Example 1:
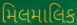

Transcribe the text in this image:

મિલમાલિક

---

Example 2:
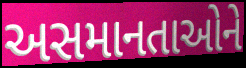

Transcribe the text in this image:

અસમાનતાઓને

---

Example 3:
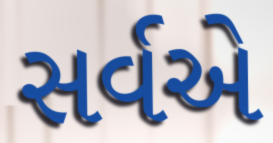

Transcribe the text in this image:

સર્વએ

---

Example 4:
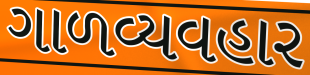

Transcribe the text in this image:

ગાળવ્યવહાર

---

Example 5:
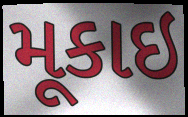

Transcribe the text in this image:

મૂકાઇ